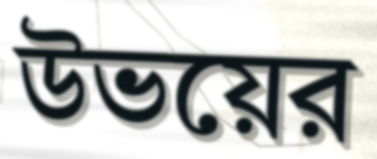
উভয়ের